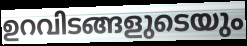
ഉറവിടങ്ങളുടെയും